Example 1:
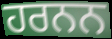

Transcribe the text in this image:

ਹਰਨਨ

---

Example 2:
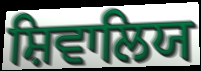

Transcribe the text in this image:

ਸ਼ਿਵਾਲਿਯ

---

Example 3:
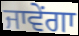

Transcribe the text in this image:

ਜਾਵੇਂਗਾ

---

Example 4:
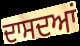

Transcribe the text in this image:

ਦਾਸਦਆਂ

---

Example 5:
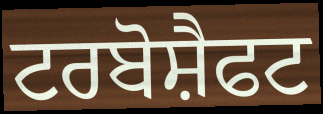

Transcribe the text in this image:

ਟਰਬੋਸ਼ੈਫਟ